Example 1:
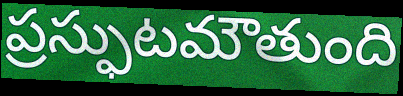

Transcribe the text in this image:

ప్రస్ఫుటమౌతుంది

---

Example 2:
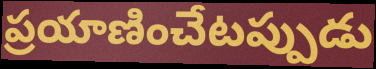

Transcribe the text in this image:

ప్రయాణించేటప్పుడు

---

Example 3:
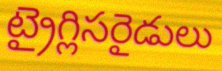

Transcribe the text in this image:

ట్రైగ్లిసరైడులు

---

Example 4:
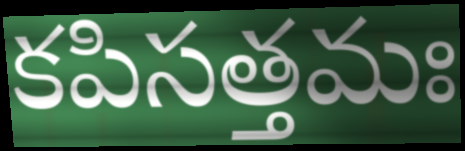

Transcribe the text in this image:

కపిసత్తమః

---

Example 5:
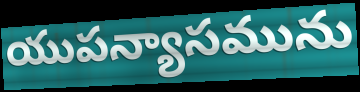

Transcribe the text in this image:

యుపన్యాసమును